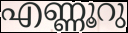
എണ്ണൂറു